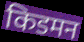
किडमन